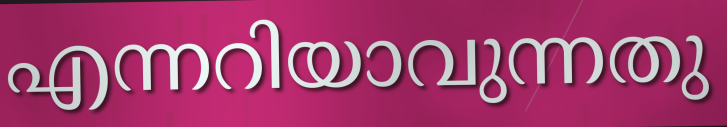
എന്നറിയാവുന്നതു